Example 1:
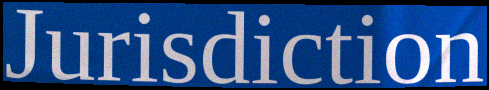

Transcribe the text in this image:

Jurisdiction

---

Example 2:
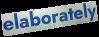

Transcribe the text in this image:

elaborately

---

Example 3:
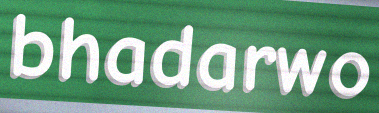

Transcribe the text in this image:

bhadarwo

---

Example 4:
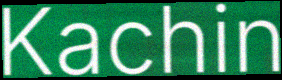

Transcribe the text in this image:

Kachin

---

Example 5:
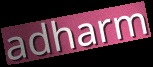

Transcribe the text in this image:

adharm